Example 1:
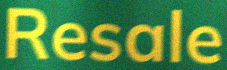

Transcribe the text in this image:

Resale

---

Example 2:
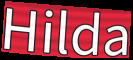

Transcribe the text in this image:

Hilda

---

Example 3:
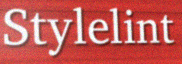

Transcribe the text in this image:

Stylelint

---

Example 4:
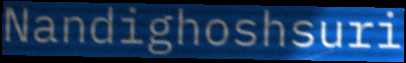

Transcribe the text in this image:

Nandighoshsuri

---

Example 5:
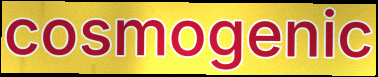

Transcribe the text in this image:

cosmogenic